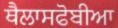
ਥੈਲਾਸਫੋਬੀਆ